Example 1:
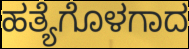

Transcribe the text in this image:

ಹತ್ಯೆಗೊಳಗಾದ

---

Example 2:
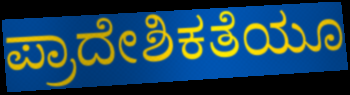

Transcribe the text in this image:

ಪ್ರಾದೇಶಿಕತೆಯೂ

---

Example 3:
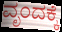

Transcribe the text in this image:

ವೃಂದಕ್ಕೆ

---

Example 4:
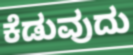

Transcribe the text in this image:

ಕೆಡುವುದು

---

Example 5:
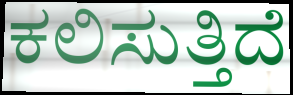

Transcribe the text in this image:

ಕಲಿಸುತ್ತಿದೆ